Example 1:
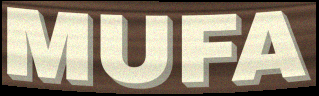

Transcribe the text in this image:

MUFA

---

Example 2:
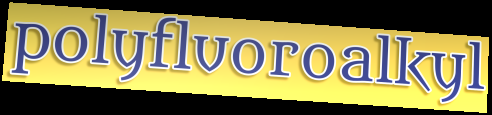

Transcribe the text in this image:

polyfluoroalkyl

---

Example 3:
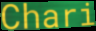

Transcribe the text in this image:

Chari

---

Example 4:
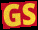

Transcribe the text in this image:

GS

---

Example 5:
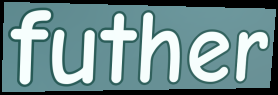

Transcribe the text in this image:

futher